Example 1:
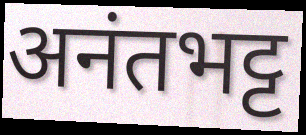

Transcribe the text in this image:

अनंतभट्ट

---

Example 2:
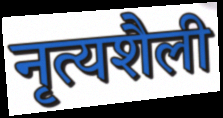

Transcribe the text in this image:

नृत्यशैली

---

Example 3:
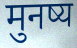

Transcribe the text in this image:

मुनष्य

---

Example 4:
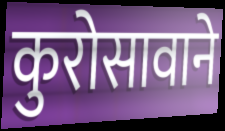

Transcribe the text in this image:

कुरोसावाने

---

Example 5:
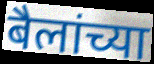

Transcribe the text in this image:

बैलांच्या